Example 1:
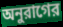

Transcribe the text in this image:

অনুরাগের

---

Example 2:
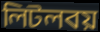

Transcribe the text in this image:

লিটলবয়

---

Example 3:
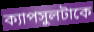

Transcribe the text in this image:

ক্যাপসুলটাকে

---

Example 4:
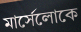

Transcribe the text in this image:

মার্সেলোকে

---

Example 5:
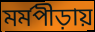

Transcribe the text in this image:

মর্মপীড়ায়